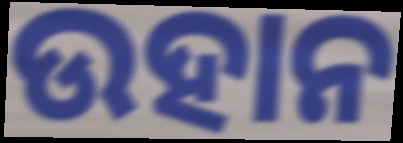
ଉହାନ